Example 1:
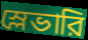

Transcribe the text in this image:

স্লেভারি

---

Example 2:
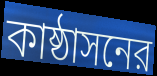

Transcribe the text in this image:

কাষ্ঠাসনের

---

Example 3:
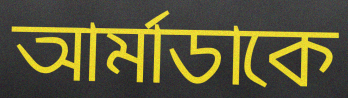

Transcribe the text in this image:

আর্মাডাকে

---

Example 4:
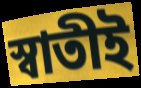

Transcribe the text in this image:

স্বাতীই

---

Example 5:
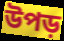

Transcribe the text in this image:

উপড়